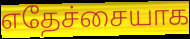
எதேச்சையாக